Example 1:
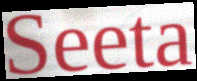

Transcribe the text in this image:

Seeta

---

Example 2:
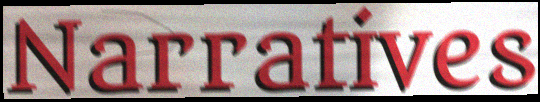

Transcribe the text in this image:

Narratives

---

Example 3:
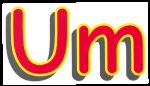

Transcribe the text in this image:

Um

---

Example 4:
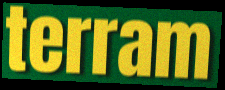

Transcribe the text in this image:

terram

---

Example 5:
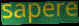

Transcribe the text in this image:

sapere